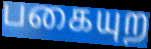
பகையுற